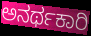
ಅನರ್ಥಕಾರಿ